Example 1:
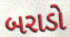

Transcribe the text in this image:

બરાડો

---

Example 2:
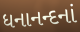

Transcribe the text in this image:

ધનાનન્દનાં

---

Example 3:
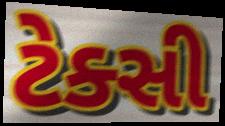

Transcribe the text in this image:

ટેક્સી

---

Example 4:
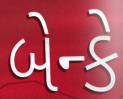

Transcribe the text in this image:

બેન્કે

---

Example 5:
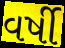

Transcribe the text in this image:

વર્ષી